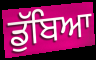
ਡੁੱਬਿਆ